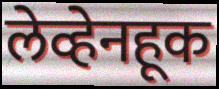
लेव्हेनहूक